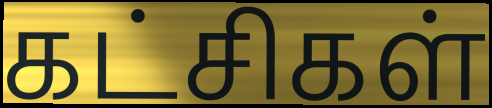
கட்சிகள்